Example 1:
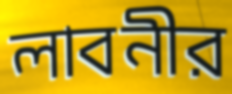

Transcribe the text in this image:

লাবনীর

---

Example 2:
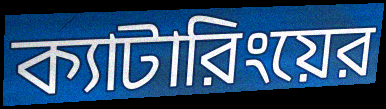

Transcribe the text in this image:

ক্যাটারিংয়ের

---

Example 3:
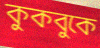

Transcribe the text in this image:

কুকবুকে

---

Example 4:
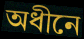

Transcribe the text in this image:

অধীনে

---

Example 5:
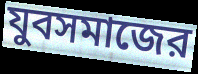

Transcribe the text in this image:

যুবসমাজের